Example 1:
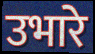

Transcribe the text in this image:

उभारे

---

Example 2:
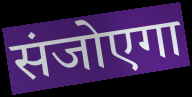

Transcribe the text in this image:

संजोएगा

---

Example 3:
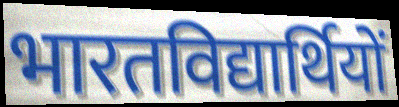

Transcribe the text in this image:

भारतविद्यार्थियों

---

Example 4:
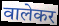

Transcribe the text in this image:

वालेकर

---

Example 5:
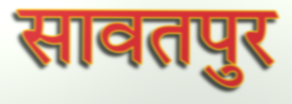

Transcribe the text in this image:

सावतपुर